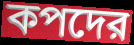
কপদের